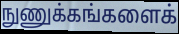
நுணுக்கங்களைக்